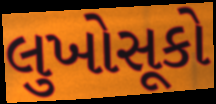
લુખોસૂકો